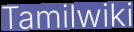
Tamilwiki